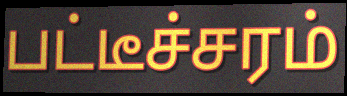
பட்டீச்சரம்